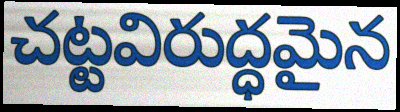
చట్టవిరుద్ధమైన